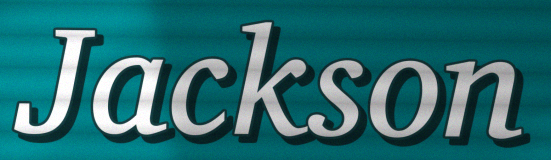
Jackson